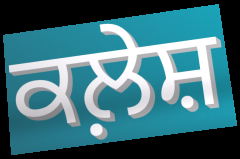
ਕਲ਼ੇਸ਼